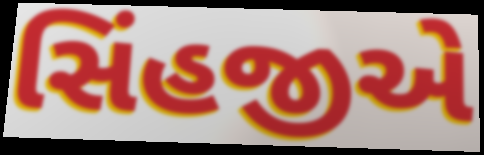
સિંહજીએ